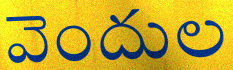
వెందుల